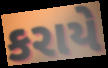
કરાયે